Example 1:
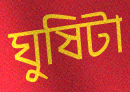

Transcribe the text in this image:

ঘুষিটা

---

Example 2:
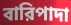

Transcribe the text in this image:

বারিপাদা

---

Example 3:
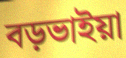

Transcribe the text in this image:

বড়ভাইয়া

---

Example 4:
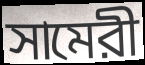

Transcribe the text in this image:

সামেরী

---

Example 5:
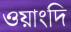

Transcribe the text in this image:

ওয়াংদি